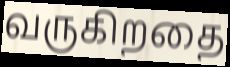
வருகிறதை